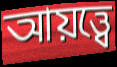
আয়ত্ত্বে